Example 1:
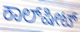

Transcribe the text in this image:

ಕಾಲ್‌ಷೀಟ್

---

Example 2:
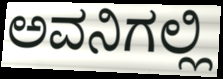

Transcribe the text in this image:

ಅವನಿಗಲ್ಲಿ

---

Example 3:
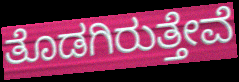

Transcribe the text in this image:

ತೊಡಗಿರುತ್ತೇವೆ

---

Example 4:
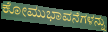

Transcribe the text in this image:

ಕೋಮುಭಾವನೆಗಳನ್ನು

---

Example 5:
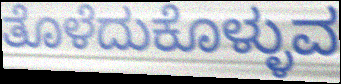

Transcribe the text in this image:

ತೊಳೆದುಕೊಳ್ಳುವ